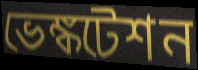
ভেঙ্কটেশন